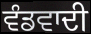
ਵੰਡਵਾਦੀ